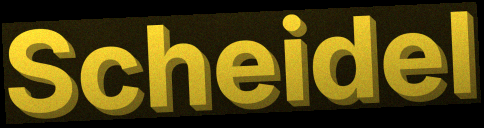
Scheidel